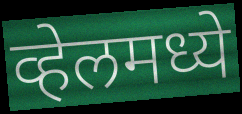
व्हेलमध्ये